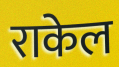
राकेल